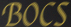
BOCS